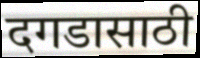
दगडासाठी